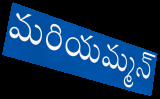
మరియమ్మన్